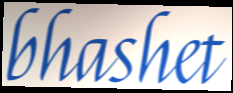
bhashet